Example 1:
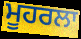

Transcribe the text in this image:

ਮੂਹਰਲਾ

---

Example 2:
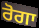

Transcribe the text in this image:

ਰੋਗਾ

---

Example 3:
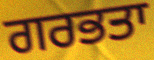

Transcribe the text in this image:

ਗਰਭਤਾ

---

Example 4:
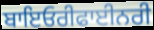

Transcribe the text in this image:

ਬਾਇਓਰੀਫਾਈਨਰੀ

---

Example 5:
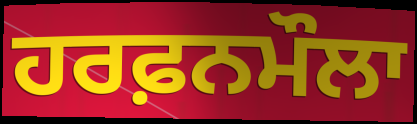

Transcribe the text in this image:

ਹਰਫ਼ਨਮੌਲਾ